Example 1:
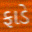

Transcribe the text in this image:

ફાડે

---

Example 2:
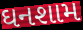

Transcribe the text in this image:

ઘનશામ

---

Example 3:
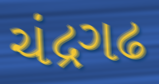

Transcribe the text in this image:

ચંદ્રગઢ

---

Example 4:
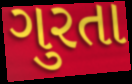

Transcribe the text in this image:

ગુરતા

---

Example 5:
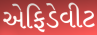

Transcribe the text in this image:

એફિડેવીટ